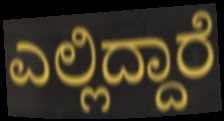
ಎಲ್ಲಿದ್ದಾರೆ